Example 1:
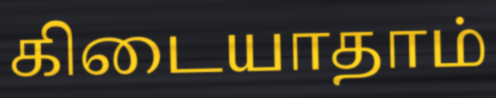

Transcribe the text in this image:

கிடையாதாம்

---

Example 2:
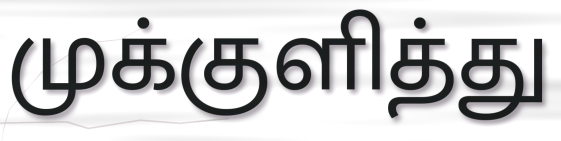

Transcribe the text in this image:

முக்குளித்து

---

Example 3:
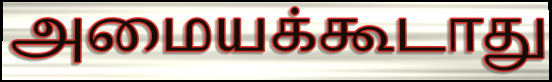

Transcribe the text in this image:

அமையக்கூடாது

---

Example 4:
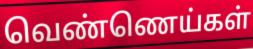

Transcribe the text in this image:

வெண்ணெய்கள்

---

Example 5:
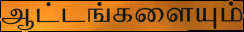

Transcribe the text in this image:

ஆட்டங்களையும்